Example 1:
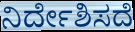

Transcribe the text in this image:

ನಿರ್ದೇಶಿಸದೆ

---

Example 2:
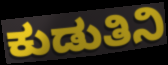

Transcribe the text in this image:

ಕುಡುತಿನಿ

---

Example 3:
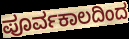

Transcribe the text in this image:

ಪೂರ್ವಕಾಲದಿಂದ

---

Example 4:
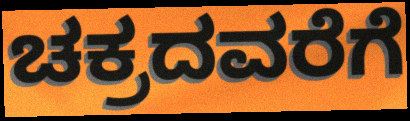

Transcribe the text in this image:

ಚಕ್ರದವರೆಗೆ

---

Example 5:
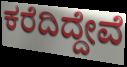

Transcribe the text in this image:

ಕರೆದಿದ್ದೇವೆ